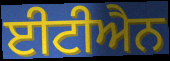
ਈਟੀਐਨ